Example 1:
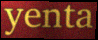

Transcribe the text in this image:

yenta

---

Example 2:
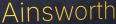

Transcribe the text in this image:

Ainsworth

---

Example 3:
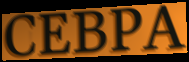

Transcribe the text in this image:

CEBPA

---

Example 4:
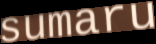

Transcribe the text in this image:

sumaru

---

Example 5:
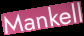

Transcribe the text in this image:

Mankell